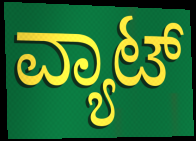
ವ್ಯಾಟ್